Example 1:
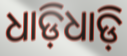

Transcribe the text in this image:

ଧାଡ଼ିଧାଡ଼ି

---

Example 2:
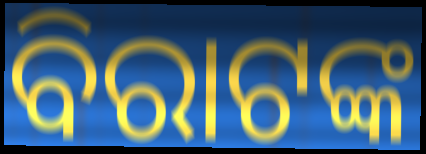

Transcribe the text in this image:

ବିରାଟଙ୍କ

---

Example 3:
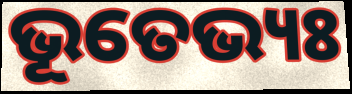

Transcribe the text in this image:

ଭୂତେଭ୍ୟଃ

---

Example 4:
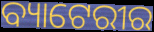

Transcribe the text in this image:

ବ୍ୟାଟେରୀର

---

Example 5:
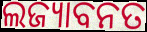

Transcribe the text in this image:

ଲଜ୍ୟାବନତ